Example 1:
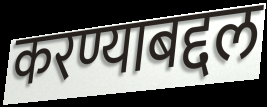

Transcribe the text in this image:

करण्याबद्दल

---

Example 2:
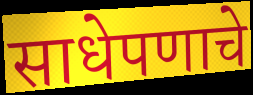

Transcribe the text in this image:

साधेपणाचे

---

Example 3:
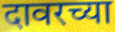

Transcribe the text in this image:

दावरच्या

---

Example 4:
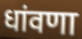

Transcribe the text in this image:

धांवणा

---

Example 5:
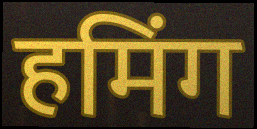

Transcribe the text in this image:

हमिंग